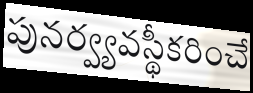
పునర్వ్యవస్థీకరించే